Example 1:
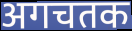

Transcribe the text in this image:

अगचतक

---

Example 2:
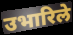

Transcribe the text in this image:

उभारिले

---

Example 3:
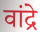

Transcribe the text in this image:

वांद्रे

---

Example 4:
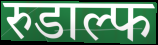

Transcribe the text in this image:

रुडाल्फ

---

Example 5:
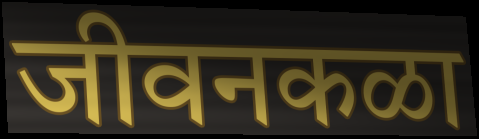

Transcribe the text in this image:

जीवनकळा